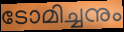
ടോമിച്ചനും